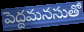
పెద్దమనసుతో